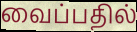
வைப்பதில்